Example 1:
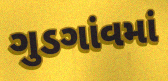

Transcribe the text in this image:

ગુડગાંવમાં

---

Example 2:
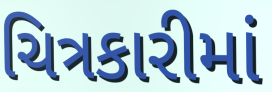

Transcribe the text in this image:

ચિત્રકારીમાં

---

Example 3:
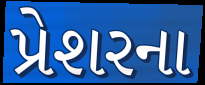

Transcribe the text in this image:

પ્રેશરના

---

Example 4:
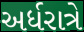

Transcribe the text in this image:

અર્ધરાત્રે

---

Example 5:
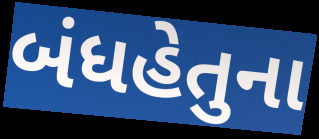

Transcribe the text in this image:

બંધહેતુના